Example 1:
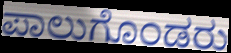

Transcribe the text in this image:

ಪಾಲುಗೊಂಡರು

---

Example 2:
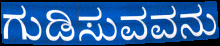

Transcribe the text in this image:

ಗುಡಿಸುವವನು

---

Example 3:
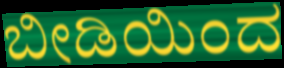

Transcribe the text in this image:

ಬೀಡಿಯಿಂದ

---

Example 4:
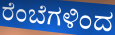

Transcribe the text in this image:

ರೆಂಬೆಗಳಿಂದ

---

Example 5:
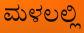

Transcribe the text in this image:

ಮಳಲಲ್ಲಿ